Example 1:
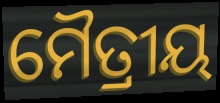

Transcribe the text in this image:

ମୈତ୍ରୀୟ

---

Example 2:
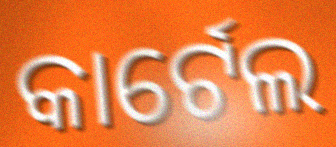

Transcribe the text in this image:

କାର୍ଟେଲ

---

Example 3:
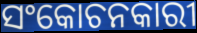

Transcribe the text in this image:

ସଂକୋଚନକାରୀ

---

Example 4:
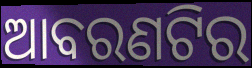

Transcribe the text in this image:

ଆବରଣଟିର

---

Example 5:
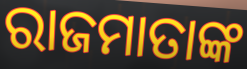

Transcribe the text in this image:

ରାଜମାତାଙ୍କ